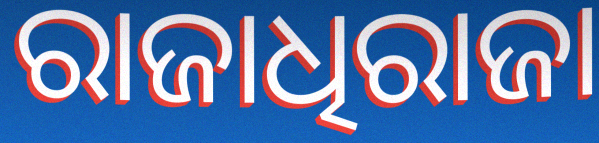
ରାଜାଧିରାଜା